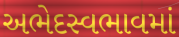
અભેદસ્વભાવમાં